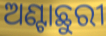
ଅଣ୍ଟାଛୁରୀ